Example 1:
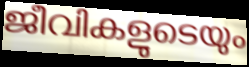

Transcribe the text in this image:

ജീവികളുടെയും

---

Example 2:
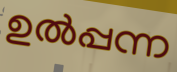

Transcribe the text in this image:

ഉൽപ്പന്ന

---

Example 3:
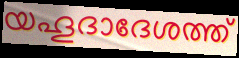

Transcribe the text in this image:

യഹൂദാദേശത്ത്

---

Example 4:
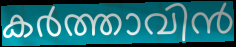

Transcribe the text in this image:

കർത്താവിൻ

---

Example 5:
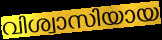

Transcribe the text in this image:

വിശ്വാസിയായ